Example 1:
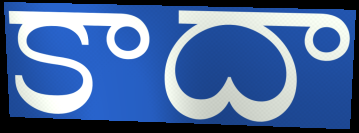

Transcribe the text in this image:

కాదా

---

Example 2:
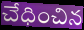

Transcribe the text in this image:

చేధించిన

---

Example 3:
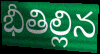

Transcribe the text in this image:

భీతిల్లిన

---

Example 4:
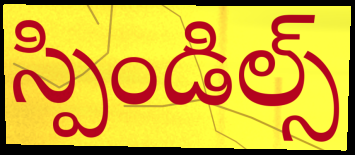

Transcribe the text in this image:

స్పిండిల్స్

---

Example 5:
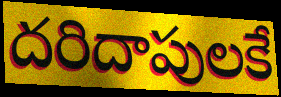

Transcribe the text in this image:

దరిదాపులకే